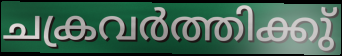
ചക്രവർത്തിക്കു്